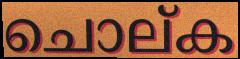
ചൊല്ക